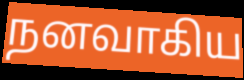
நனவாகிய